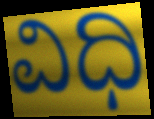
ವಿಧಿ